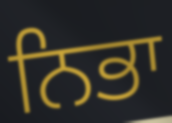
ਨਿਭਾ